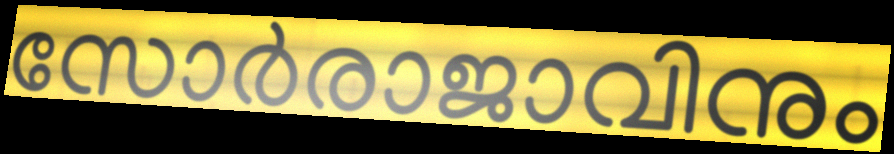
സോർരാജാവിനും